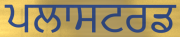
ਪਲਾਸਟਰਡ